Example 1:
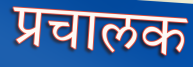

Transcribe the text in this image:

प्रचालक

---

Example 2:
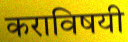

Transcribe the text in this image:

कराविषयी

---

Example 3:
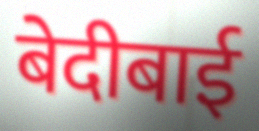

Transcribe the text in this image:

बेदीबाई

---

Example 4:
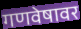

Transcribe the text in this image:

गणवेषावर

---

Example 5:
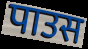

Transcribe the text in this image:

पाउस